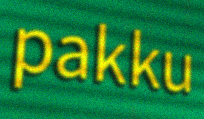
pakku